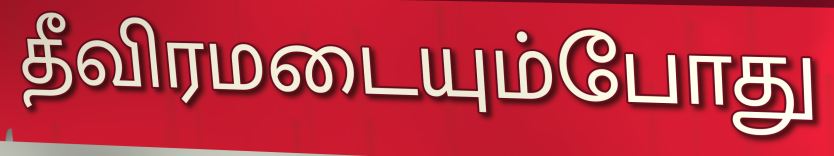
தீவிரமடையும்போது